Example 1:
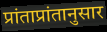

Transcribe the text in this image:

प्रांताप्रांतानुसार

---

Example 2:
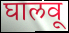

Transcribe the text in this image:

घालवू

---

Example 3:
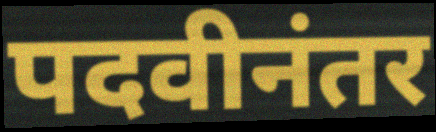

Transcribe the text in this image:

पदवीनंतर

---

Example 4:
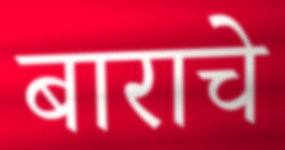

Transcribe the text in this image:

बाराचे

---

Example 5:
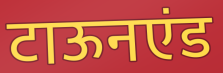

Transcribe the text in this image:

टाऊनएंड